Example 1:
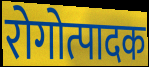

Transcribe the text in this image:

रोगोत्पादक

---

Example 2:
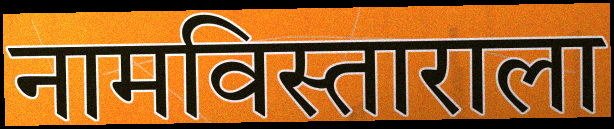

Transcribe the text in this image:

नामविस्ताराला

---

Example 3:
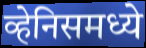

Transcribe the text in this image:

व्हेनिसमध्ये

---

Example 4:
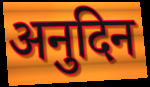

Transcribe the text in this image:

अनुदिन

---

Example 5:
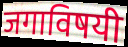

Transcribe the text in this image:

जगाविषयी